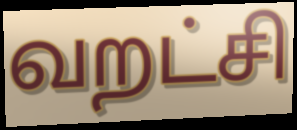
வறட்சி